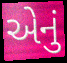
એેનું